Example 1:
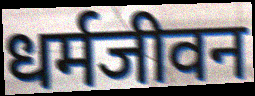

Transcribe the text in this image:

धर्मजीवन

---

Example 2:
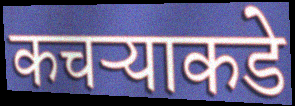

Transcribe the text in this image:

कचऱ्याकडे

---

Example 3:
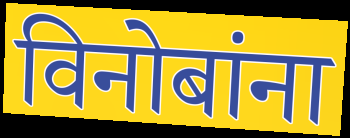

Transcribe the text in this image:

विनोबांना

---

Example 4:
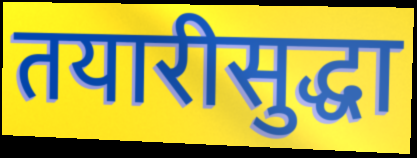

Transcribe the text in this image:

तयारीसुद्धा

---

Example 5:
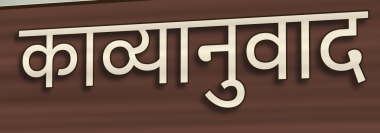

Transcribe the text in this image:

काव्यानुवाद